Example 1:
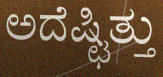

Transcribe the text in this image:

ಅದೆಷ್ಟಿತ್ತು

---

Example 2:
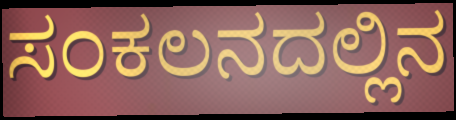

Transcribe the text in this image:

ಸಂಕಲನದಲ್ಲಿನ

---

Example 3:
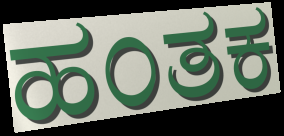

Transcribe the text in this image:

ಹಂತಕ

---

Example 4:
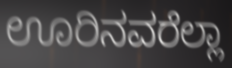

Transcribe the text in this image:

ಊರಿನವರೆಲ್ಲಾ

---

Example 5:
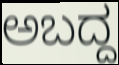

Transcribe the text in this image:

ಅಬದ್ದ